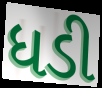
ધડી